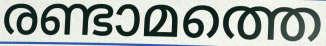
രണ്ടാമത്തെ